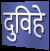
दुविहे